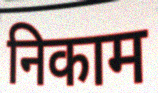
निकाम